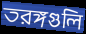
তরঙ্গগুলি